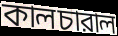
কালচারাল